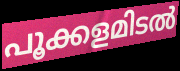
പൂക്കളമിടൽ